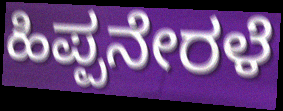
ಹಿಪ್ಪನೇರಳೆ